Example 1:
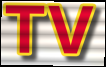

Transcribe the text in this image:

TV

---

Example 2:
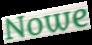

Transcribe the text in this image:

Nowe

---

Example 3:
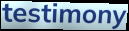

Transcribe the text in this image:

testimony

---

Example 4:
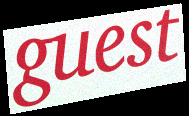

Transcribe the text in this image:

guest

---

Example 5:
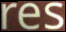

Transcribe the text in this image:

res